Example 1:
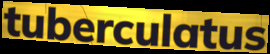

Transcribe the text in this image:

tuberculatus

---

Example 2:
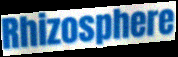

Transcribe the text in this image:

Rhizosphere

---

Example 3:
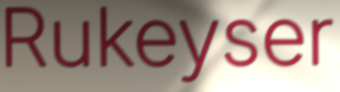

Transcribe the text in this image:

Rukeyser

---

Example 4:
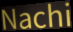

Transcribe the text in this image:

Nachi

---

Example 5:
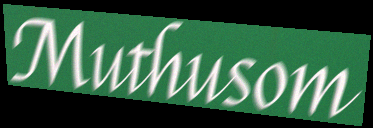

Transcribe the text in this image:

Muthusom